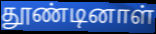
தூண்டினாள்